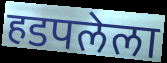
हडपलेला